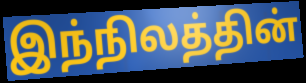
இந்நிலத்தின்